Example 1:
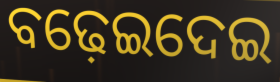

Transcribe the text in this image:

ବଢ଼େଇଦେଇ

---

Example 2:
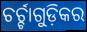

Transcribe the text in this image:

ଚର୍ଚ୍ଚାଗୁଡ଼ିକର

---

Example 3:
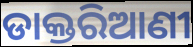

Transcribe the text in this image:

ଡାକ୍ତରିଆଣୀ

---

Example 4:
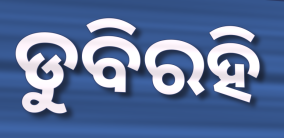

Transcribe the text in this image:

ଡୁବିରହି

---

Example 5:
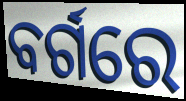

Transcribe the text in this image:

ବର୍ଗରେ